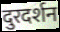
दुरदर्शन